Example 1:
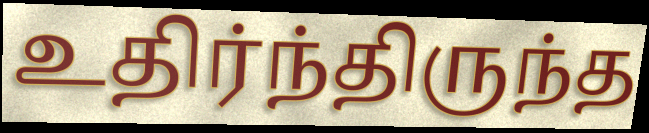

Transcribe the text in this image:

உதிர்ந்திருந்த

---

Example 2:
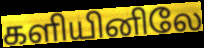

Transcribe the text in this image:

களியினிலே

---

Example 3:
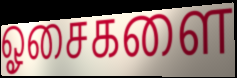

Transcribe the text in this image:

ஓசைகளை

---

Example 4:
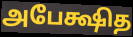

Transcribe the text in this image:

அபேக்ஷித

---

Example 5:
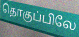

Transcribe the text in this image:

தொகுப்பிலே